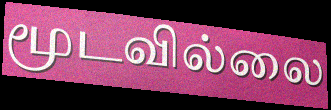
மூடவில்லை